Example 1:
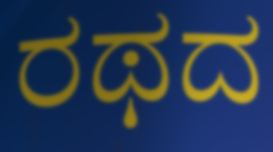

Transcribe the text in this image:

ರಥದ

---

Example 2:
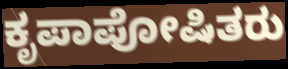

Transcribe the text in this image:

ಕೃಪಾಪೋಷಿತರು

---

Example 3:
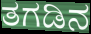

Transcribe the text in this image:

ತಗಡಿನ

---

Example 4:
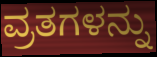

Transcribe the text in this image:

ವ್ರತಗಳನ್ನು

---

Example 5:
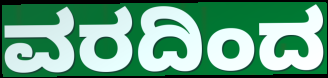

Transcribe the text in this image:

ವರದಿಂದ